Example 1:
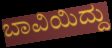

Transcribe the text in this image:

ಬಾವಿಯಿದ್ದು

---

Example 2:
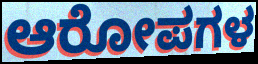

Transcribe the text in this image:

ಆರೋಪಗಳ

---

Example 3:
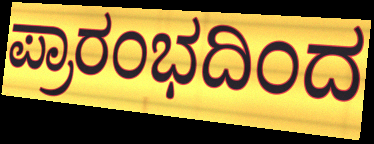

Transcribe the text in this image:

ಪ್ರಾರಂಭದಿಂದ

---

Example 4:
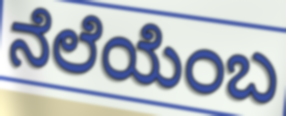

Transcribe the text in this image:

ನೆಲೆಯೆಂಬ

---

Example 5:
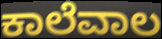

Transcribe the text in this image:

ಕಾಲೆವಾಲ